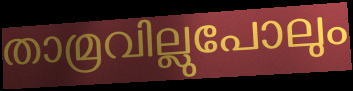
താമ്രവില്ലുപോലും